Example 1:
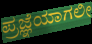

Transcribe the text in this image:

ಪ್ರಜ್ಞೆಯಾಗಲೀ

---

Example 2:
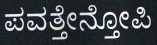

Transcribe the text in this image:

ಪವತ್ತೇನ್ತೋಪಿ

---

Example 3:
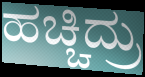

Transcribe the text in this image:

ಹಚ್ಚಿದ್ರು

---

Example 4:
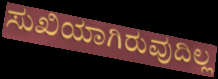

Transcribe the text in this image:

ಸುಖಿಯಾಗಿರುವುದಿಲ್ಲ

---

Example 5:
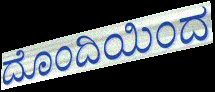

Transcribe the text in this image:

ದೊಂದಿಯಿಂದ